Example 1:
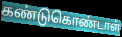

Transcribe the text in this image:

கண்டுகொண்டாள்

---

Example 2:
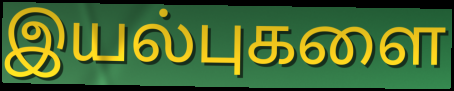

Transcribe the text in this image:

இயல்புகளை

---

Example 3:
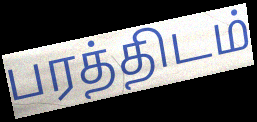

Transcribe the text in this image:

பரத்திடம்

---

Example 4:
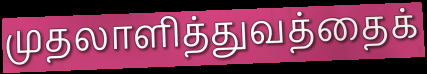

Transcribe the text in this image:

முதலாளித்துவத்தைக்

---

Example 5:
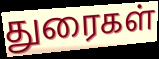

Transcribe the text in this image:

துரைகள்